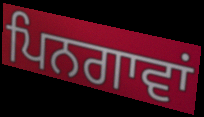
ਪਿਨਗਾਵਾਂ